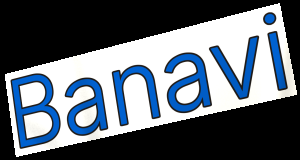
Banavi